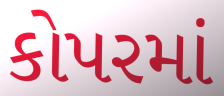
કોપરમાં